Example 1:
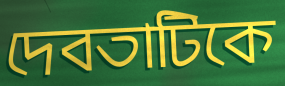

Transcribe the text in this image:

দেবতাটিকে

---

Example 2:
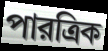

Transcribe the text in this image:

পারত্রিক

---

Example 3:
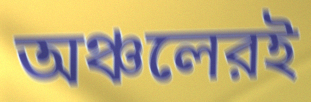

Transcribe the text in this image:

অঞ্চলেরই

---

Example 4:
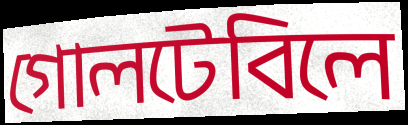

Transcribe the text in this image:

গোলটেবিলে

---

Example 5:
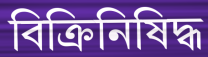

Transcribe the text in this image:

বিক্রিনিষিদ্ধ